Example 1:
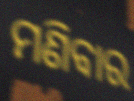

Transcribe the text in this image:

ମଣିବାର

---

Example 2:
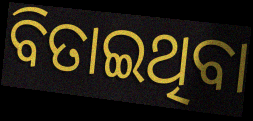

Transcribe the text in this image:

ବିତାଇଥିବା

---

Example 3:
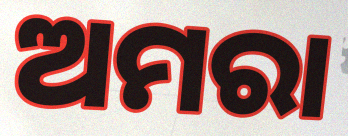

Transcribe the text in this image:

ଅମରା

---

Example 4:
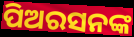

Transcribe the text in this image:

ପିଅରସନଙ୍କ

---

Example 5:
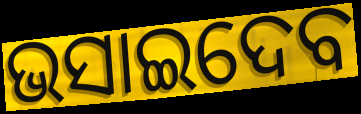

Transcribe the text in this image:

ଭସାଇଦେବ